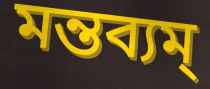
মন্তব্যম্